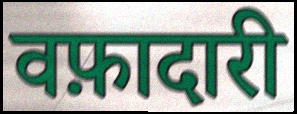
वफ़ादारी